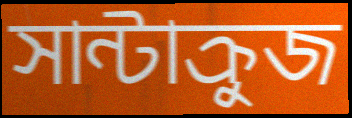
সান্টাক্রুজ